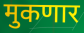
मुकणार